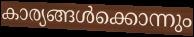
കാര്യങ്ങൾക്കൊന്നും